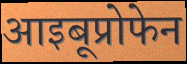
आइबूप्रोफेन